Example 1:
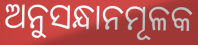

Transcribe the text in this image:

ଅନୁସନ୍ଧାନମୂଳକ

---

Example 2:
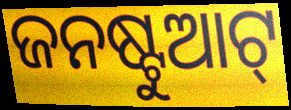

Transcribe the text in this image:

ଜନଷ୍ଟୁଆଟ୍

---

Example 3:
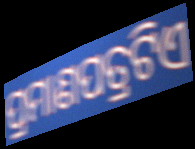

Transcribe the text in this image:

ପ୍ରମାଣପତ୍ରଟିଏ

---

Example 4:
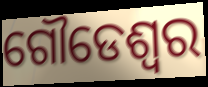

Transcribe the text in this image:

ଗୌଡେଶ୍ୱର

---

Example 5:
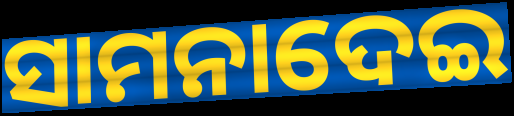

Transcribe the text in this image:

ସାମନାଦେଇ